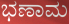
ಭಣಾಮ